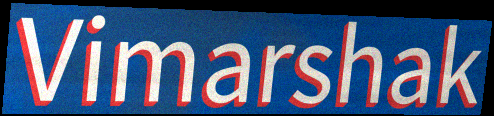
Vimarshak